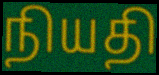
நியதி